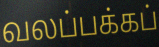
வலப்பக்கப்